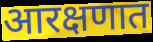
आरक्षणात